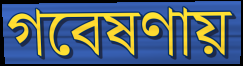
গবেষণায়